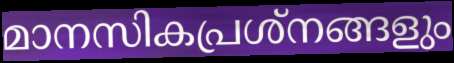
മാനസികപ്രശ്നങ്ങളും